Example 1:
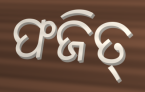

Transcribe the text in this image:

ଫଜିତ୍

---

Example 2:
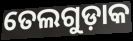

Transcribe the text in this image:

ତେଲଗୁଡ଼ାକ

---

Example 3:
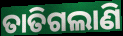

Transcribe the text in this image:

ତାତିଗଲାଣି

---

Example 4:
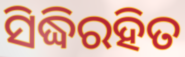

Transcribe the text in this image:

ସିଦ୍ଧିରହିତ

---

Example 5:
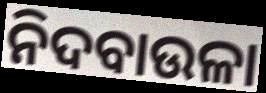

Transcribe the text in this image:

ନିଦବାଉଳା